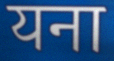
यना